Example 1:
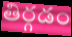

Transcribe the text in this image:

తిర్గడం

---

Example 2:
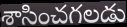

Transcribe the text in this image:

శాసించగలడు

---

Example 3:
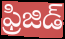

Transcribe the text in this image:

ఫ్రిజిడ్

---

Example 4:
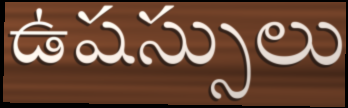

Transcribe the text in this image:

ఉషస్సులు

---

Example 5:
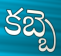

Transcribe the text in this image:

కబ్బె